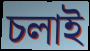
চলাই